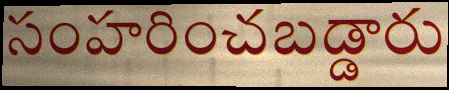
సంహరించబడ్డారు